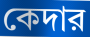
কেদার